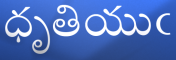
ధృతియుఁ